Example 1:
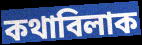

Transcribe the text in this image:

কথাবিলাক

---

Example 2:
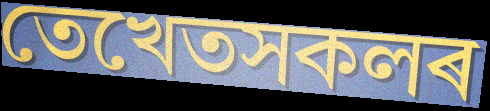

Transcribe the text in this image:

তেখেতসকলৰ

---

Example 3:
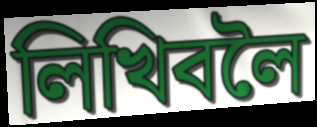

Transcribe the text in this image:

লিখিবলৈ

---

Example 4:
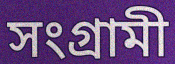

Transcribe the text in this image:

সংগ্ৰামী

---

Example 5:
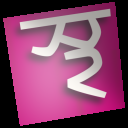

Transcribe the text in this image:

স্থ